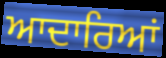
ਆਦਾਰਿਆਂ